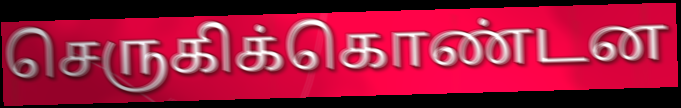
செருகிக்கொண்டன